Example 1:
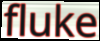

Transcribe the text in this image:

fluke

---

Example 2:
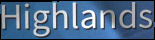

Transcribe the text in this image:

Highlands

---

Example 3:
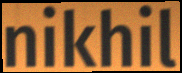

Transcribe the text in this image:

nikhil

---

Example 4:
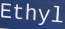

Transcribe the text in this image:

Ethyl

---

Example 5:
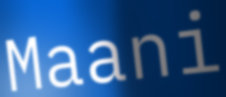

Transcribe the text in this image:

Maani